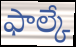
ఫాల్కే